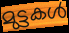
മുട്ടകൾ